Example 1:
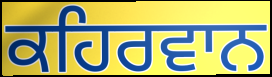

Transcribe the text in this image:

ਕਹਿਰਵਾਨ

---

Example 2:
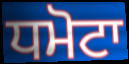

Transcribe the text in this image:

ਧਮੋਟਾ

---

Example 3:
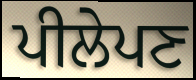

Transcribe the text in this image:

ਪੀਲੇਪਣ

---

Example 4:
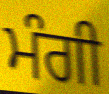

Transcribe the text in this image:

ਮੰਗੀ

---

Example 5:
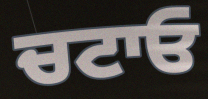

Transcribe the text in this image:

ਚਟਾਓ